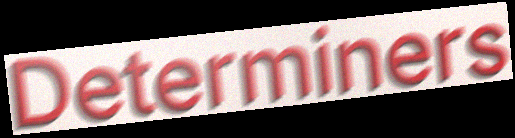
Determiners